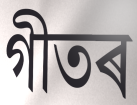
গীতৰ